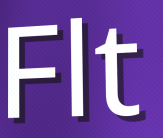
Flt